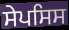
ਸੇਪਸਿਸ